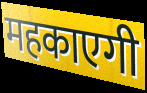
महकाएगी